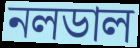
নলডাল